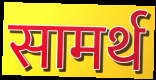
सामर्थ